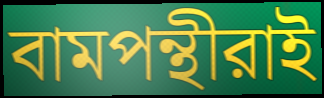
বামপন্থীরাই